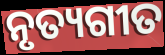
ନୃତ୍ୟଗୀତ